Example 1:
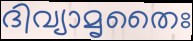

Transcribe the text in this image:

ദിവ്യാമൃതൈഃ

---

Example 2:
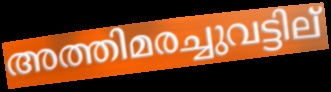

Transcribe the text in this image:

അത്തിമരച്ചുവട്ടില്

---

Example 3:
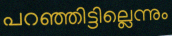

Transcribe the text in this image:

പറഞ്ഞിട്ടില്ലെന്നും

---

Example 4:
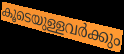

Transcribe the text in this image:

കൂടെയുള്ളവർക്കും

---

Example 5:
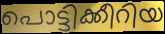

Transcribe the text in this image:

പൊട്ടിക്കീറിയ